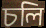
চলি